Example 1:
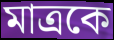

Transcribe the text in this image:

মাত্ৰকে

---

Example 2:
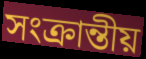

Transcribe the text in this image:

সংক্ৰান্তীয়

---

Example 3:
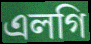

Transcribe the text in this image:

এলগি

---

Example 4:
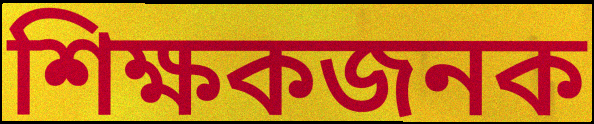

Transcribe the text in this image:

শিক্ষকজনক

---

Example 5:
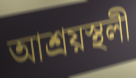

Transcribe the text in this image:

আশ্ৰয়স্থলী